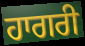
ਹਾਗਰੀ